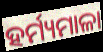
ହର୍ମ୍ୟମାଳା